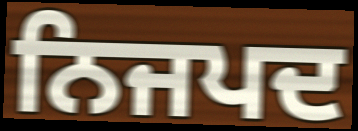
ਨਿਜਪਦ